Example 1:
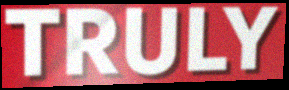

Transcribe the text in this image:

TRULY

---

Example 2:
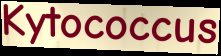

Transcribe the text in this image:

Kytococcus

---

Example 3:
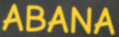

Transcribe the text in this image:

ABANA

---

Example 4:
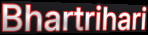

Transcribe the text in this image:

Bhartrihari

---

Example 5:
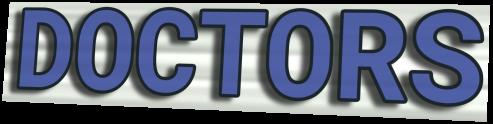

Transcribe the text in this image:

DOCTORS